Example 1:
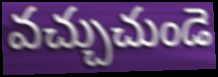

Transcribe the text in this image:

వచ్చుచుండె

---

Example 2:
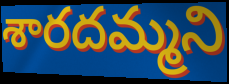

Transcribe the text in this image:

శారదమ్మని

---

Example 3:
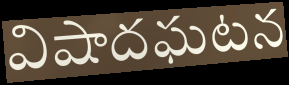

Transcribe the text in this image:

విషాదఘటన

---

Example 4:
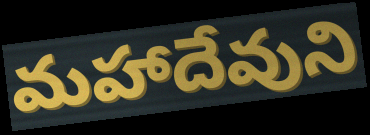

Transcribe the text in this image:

మహాదేవుని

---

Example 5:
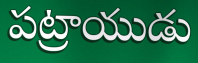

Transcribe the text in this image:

పట్రాయుడు